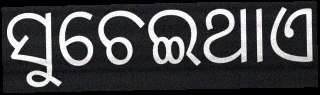
ସୁଚେଇଥାଏ